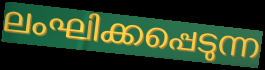
ലംഘിക്കപ്പെടുന്ന